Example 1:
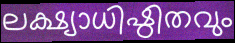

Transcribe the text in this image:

ലക്ഷ്യാധിഷ്ഠിതവും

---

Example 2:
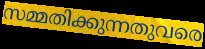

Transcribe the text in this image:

സമ്മതിക്കുന്നതുവരെ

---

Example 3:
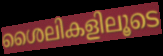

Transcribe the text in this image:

ശൈലികളിലൂടെ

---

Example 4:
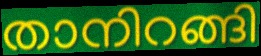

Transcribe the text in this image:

താനിറങ്ങി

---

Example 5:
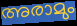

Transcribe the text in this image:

അരാമും